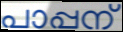
പാപ്പന്